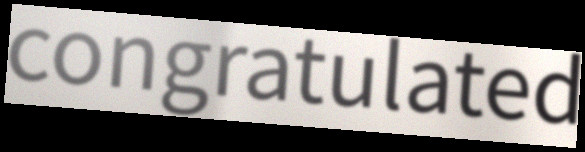
congratulated